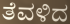
ತೆವಳಿದ